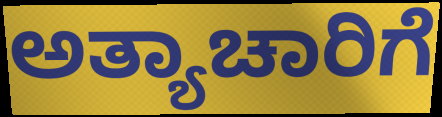
ಅತ್ಯಾಚಾರಿಗೆ